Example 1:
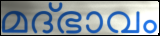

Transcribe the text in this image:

മദ്ഭാവം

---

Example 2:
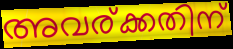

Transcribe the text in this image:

അവര്ക്കതിന്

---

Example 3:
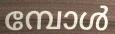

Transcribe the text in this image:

മ്പോൾ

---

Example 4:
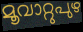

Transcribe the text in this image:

മൂവാറ്റുപുഴ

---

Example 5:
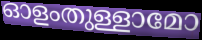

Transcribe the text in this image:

ഓളംതുള്ളാമോ